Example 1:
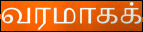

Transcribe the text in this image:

வரமாகக்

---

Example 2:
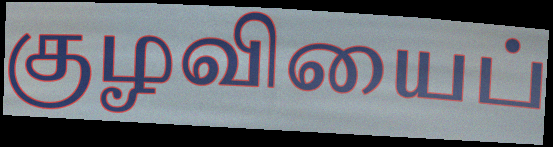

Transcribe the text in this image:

குழவியைப்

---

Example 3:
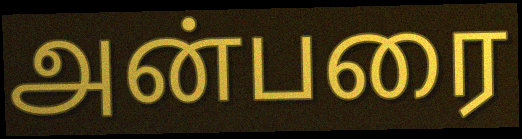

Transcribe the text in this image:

அன்பரை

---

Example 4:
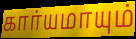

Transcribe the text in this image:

கார்யமாயும்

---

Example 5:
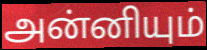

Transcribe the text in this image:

அன்னியும்